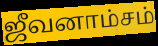
ஜீவனாம்சம்